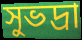
সুভদ্রা